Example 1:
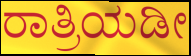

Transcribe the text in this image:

ರಾತ್ರಿಯಡೀ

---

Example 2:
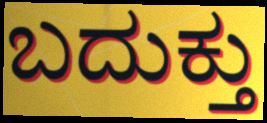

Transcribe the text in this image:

ಬದುಕ್ತು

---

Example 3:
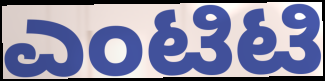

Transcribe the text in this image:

ಎಂಟಿಟಿ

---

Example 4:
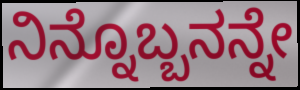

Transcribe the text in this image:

ನಿನ್ನೊಬ್ಬನನ್ನೇ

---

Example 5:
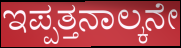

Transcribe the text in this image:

ಇಪ್ಪತ್ತನಾಲ್ಕನೇ